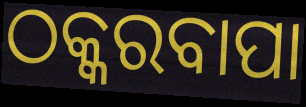
ଠକ୍କରବାପା